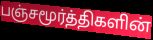
பஞ்சமூர்த்திகளின்